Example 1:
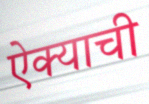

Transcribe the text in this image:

ऐक्याची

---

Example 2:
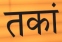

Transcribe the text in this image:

तकां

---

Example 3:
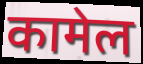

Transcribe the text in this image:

कामेल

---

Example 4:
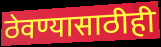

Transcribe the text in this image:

ठेवण्यासाठीही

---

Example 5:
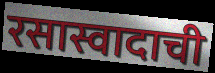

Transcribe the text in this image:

रसास्वादाची